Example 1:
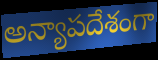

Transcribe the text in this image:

అన్యాపదేశంగా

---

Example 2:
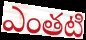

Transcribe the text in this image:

ఎంతటి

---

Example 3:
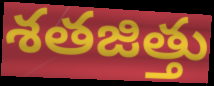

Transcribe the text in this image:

శతజిత్తు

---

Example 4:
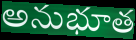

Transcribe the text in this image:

అనుభూత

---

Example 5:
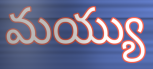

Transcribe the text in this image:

మయ్యు